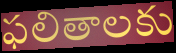
ఫలితాలకు